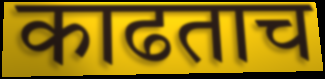
काढताच